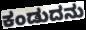
ಕಂಡುದನು